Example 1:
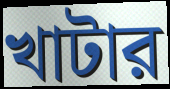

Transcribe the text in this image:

খাটার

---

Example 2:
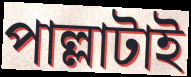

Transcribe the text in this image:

পাল্লাটাই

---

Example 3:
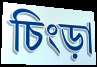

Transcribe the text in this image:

চিংড়া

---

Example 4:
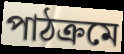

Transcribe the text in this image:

পাঠক্রমে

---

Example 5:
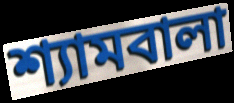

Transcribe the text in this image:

শ্যামবালা